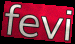
fevi